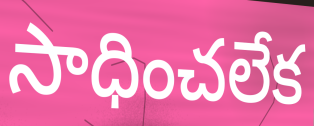
సాధించలేక